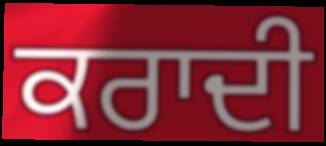
ਕਰਾਦੀ